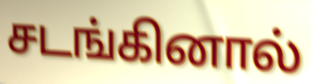
சடங்கினால்